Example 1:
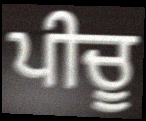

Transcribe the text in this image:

ਪੀਚੂ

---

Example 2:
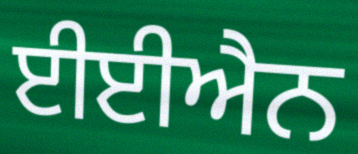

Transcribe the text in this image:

ਈਈਐਨ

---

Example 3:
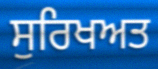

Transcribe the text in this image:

ਸੁਰਿਖਅਤ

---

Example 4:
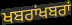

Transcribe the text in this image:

ਖਬਰਾਂਖਬਰਾਂ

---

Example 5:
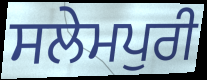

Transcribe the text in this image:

ਸਲੇਮਪੁਰੀ